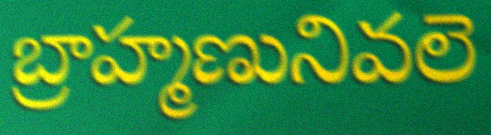
బ్రాహ్మణునివలె